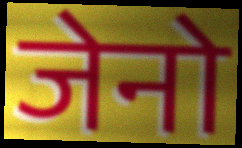
जेनो